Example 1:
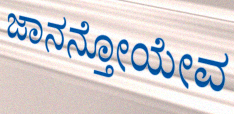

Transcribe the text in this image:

ಜಾನನ್ತೋಯೇವ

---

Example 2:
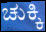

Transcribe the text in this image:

ಚುಕ್ಕಿ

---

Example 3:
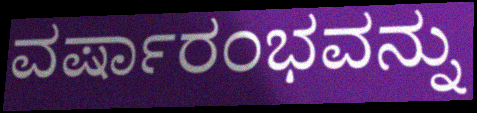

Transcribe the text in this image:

ವರ್ಷಾರಂಭವನ್ನು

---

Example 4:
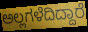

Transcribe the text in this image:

ಅಲ್ಲಗಳೆದಿದ್ದಾರೆ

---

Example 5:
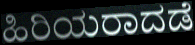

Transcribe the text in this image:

ಹಿರಿಯರಾದಡೆ